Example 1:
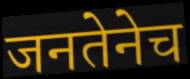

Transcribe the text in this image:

जनतेनेच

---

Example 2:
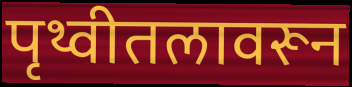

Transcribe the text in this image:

पृथ्वीतलावरून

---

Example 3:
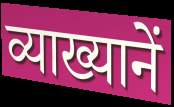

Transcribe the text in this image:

व्याख्यानें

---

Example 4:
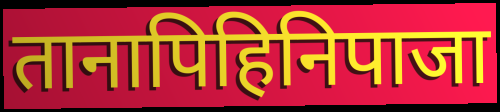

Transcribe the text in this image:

तानापिहिनिपाजा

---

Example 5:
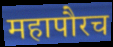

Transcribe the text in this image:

महापौरच